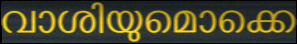
വാശിയുമൊക്കെ